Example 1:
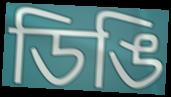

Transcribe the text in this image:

ডিঙি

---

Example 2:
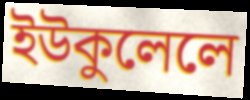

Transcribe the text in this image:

ইউকুলেলে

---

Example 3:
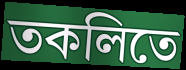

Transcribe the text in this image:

তকলিতে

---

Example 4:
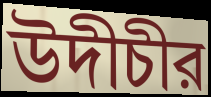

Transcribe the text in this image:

উদীচীর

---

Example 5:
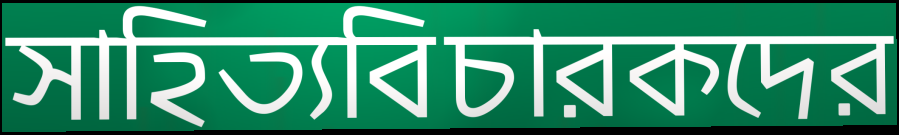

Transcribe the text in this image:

সাহিত্যবিচারকদের